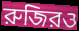
রুজিরও